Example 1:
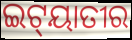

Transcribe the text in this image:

ଇଟ୍‍ୟାତୀର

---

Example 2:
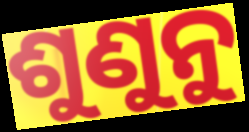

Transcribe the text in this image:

ଶୁଣୁନୁ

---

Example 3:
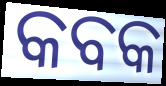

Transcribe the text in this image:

କବକ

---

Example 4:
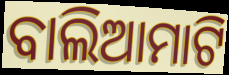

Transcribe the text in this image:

ବାଲିଆମାଟି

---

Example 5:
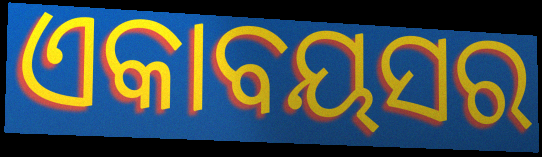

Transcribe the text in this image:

ଏକାବୟସର